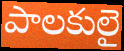
పాలకులై